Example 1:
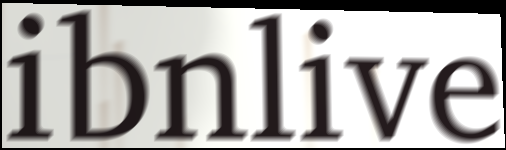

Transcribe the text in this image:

ibnlive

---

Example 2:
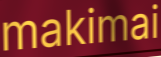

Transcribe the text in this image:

makimai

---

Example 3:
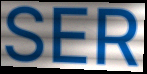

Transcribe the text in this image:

SER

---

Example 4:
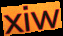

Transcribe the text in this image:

xiw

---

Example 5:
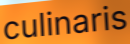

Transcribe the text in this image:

culinaris